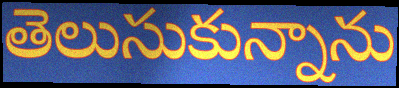
తెలుసుకున్నాను